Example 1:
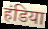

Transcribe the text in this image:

हंडिया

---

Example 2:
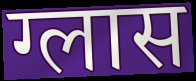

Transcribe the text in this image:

ग्लास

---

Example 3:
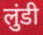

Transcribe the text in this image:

लुंडी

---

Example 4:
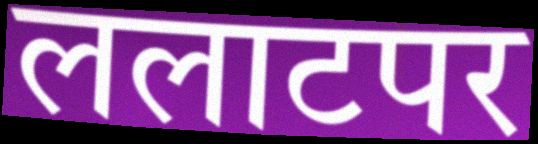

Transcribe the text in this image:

ललाटपर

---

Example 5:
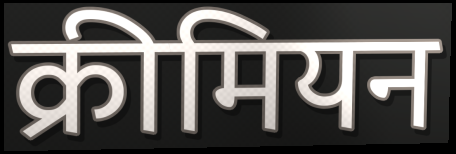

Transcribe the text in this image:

क्रीमियन